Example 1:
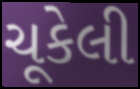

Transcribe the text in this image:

ચૂકેલી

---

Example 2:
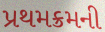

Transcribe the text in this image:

પ્રથમક્રમની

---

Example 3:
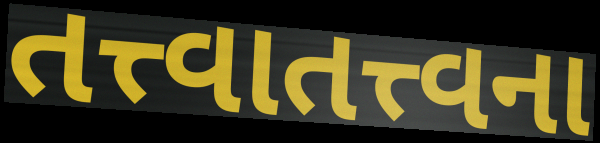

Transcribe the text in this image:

તત્ત્વાતત્ત્વના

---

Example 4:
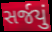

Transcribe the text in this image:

સર્જયું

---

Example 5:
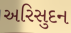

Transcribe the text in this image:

અરિસુદન